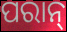
ପରାନ୍